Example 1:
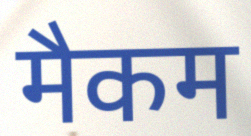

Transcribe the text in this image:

मैकम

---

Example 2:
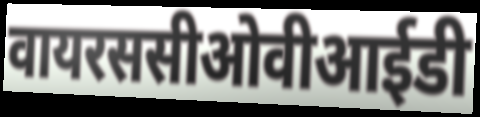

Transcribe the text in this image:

वायरससीओवीआईडी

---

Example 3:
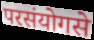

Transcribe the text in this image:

परसंयोगसे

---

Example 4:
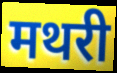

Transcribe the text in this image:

मथरी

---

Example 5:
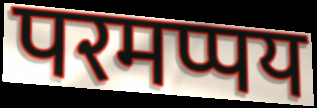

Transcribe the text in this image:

परमप्पय